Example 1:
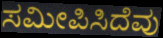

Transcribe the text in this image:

ಸಮೀಪಿಸಿದೆವು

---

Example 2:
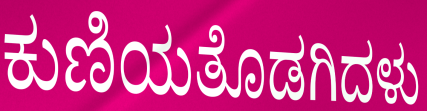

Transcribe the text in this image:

ಕುಣಿಯತೊಡಗಿದಳು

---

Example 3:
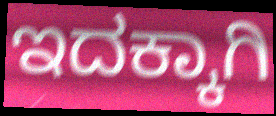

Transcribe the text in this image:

ಇದಕ್ಕಾಗಿ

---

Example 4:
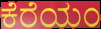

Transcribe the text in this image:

ಕೆರೆಯಂ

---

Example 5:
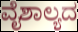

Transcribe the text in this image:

ವೈಶಾಲ್ಯದ